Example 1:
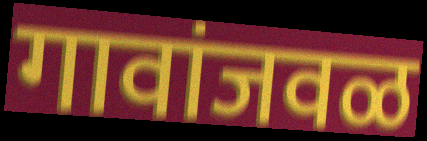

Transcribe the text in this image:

गावांजवळ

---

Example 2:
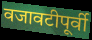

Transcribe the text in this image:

वजावटीपूर्वी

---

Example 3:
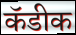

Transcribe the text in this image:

कॅडीक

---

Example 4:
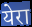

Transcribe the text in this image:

येरा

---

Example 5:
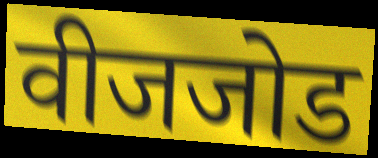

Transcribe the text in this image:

वीजजोड